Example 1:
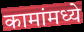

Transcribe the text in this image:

कामांमध्ये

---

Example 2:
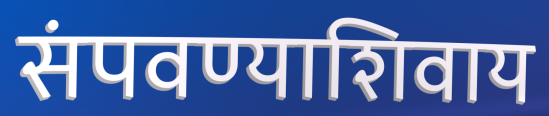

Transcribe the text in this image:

संपवण्याशिवाय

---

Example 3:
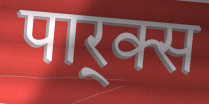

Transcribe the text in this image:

पार्क्स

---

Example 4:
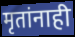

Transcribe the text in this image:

मृतांनाही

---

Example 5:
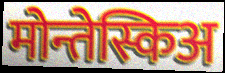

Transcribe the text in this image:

मोन्तेस्किअ